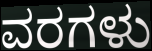
ವರಗಳು